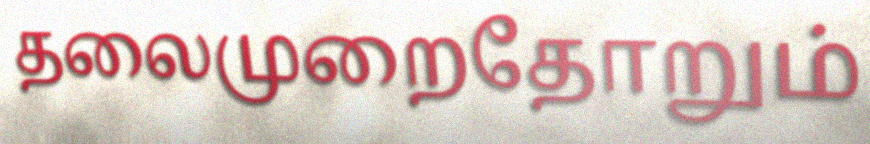
தலைமுறைதோறும்